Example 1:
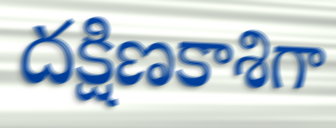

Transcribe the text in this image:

దక్షిణకాశిగా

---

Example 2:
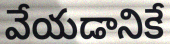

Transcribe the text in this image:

వేయడానికే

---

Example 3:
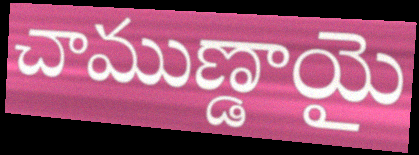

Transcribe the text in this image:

చాముణ్డాయై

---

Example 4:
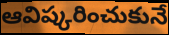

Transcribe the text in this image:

ఆవిష్కరించుకునే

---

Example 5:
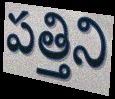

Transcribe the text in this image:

పత్తిని